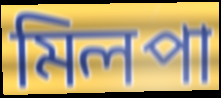
মিলপা